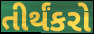
તીર્થંકરો